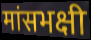
मांसभक्षी